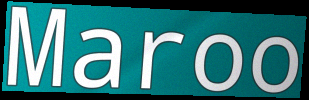
Maroo